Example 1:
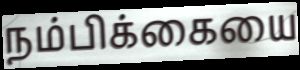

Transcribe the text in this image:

நம்பிக்கையை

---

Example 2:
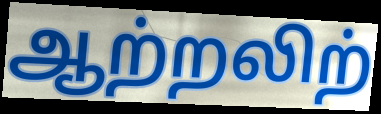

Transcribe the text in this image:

ஆற்றலிற்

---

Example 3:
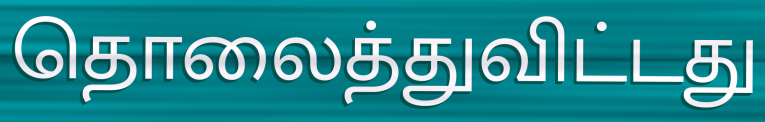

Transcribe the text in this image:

தொலைத்துவிட்டது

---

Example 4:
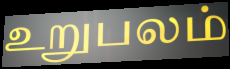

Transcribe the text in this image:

உறுபலம்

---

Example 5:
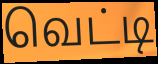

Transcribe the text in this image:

வெட்டி